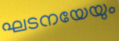
ഘടനയേയും